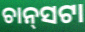
ଚାନ୍‌ସଟା